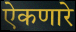
ऐकणारे